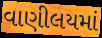
વાણીલયમાં